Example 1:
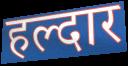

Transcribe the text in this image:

हल्दार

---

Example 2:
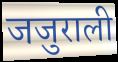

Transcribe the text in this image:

जजुराली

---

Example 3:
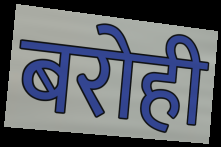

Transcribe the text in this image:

बरोही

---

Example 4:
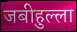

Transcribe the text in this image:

जबीहुल्ला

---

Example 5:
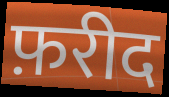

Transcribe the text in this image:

फ़रीद